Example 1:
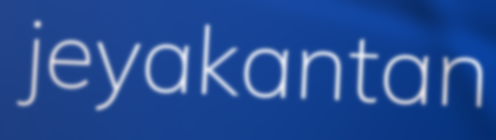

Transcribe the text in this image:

jeyakantan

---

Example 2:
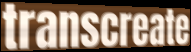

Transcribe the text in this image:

transcreate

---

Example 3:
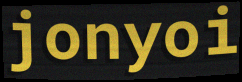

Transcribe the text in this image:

jonyoi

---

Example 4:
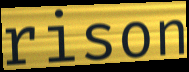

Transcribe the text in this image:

rison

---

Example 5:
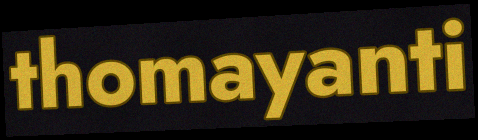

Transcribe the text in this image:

thomayanti